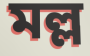
মল্ল